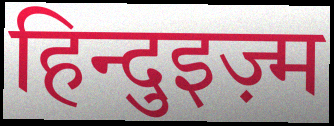
हिन्दुइज़्म